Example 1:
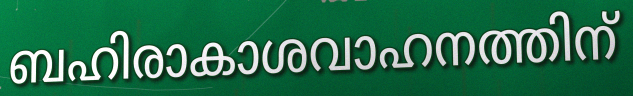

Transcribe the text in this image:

ബഹിരാകാശവാഹനത്തിന്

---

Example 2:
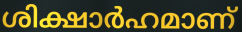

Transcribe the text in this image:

ശിക്ഷാർഹമാണ്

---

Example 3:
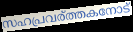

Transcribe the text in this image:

സഹപ്രവര്ത്തകനോട്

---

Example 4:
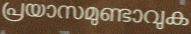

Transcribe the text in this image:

പ്രയാസമുണ്ടാവുക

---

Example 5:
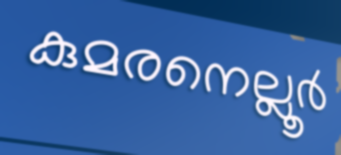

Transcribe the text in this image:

കുമരനെല്ലൂർ